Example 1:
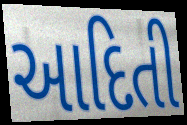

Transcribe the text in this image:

આદિતી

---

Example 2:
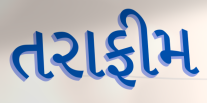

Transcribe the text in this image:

તરાફીમ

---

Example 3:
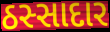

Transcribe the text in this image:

ઠસ્સાદાર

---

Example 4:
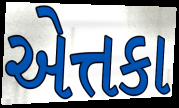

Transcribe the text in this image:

એત્તકા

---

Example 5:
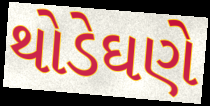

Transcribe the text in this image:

થોડેઘણે